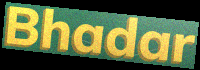
Bhadar